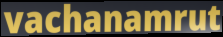
vachanamrut